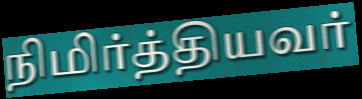
நிமிர்த்தியவர்